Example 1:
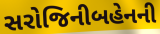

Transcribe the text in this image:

સરોજિનીબહેનની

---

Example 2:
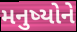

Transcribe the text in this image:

મનુષ્યોને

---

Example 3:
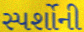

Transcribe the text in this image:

સ્પર્શોની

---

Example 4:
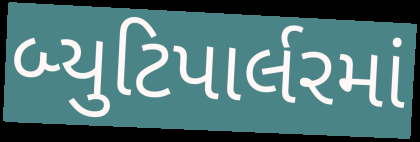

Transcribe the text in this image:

બ્યુટિપાર્લરમાં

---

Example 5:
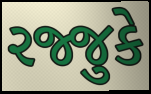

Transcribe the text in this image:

રજ્જુકે